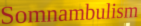
Somnambulism